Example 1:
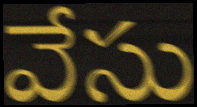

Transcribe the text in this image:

వేసు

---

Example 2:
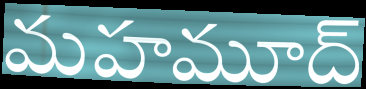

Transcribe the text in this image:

మహమూద్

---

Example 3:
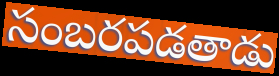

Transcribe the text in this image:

సంబరపడతాడు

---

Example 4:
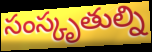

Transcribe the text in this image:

సంస్కృతుల్ని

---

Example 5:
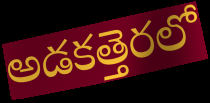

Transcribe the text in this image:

అడకత్తెరలో